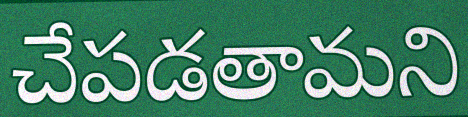
చేపడతామని